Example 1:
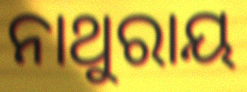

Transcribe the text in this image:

ନାଥୁରାୟ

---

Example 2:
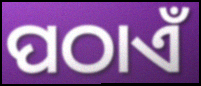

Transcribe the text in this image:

ପଠାଏଁ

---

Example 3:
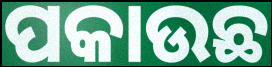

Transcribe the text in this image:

ପକାଉଛ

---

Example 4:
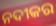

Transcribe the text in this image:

ନଦୀକର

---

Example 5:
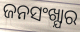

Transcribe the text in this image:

ଜନସଂଖ୍ଯାର